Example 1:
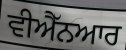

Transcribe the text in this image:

ਵੀਐੱਨਆਰ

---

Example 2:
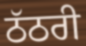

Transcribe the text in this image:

ਠੱਠਰੀ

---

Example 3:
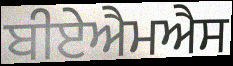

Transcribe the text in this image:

ਬੀਏਐਮਐਸ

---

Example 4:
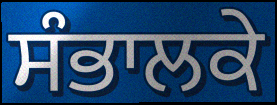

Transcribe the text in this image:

ਸੰਭਾਲਕੇ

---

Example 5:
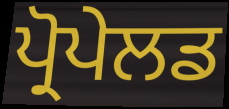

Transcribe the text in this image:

ਪ੍ਰੋਪੇਲਡ